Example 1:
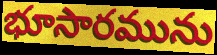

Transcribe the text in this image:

భూసారమును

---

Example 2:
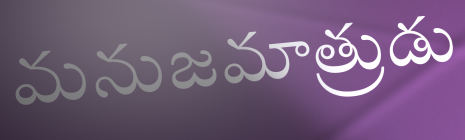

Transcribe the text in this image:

మనుజమాత్రుడు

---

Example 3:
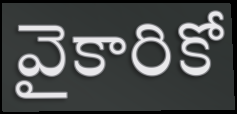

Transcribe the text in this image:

వైకారికో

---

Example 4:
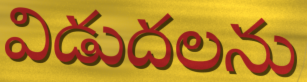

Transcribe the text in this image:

విడుదలను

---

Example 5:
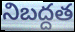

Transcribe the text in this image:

నిబద్దత